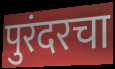
पुरंदरचा